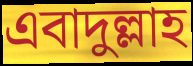
এবাদুল্লাহ